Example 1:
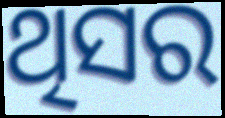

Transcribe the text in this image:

ଥିସର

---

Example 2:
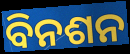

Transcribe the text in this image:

ବିନଶନ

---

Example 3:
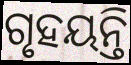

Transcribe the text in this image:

ଗୃହୟନ୍ତି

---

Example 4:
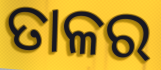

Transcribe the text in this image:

ତାଳର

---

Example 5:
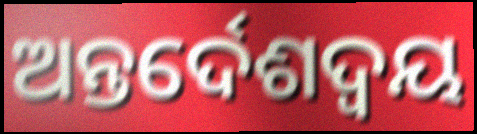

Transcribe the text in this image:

ଅନ୍ତର୍ଦେଶଦ୍ଵୟ